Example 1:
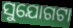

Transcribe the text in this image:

ସୁଯୋଗଟା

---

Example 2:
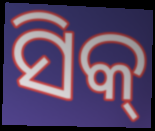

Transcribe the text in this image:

ସିକ୍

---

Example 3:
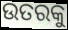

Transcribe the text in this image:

ଉତରକୁ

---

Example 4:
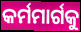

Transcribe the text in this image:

କର୍ମମାର୍ଗକୁ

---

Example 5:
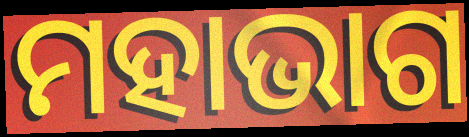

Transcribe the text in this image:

ମହାଭାଗ